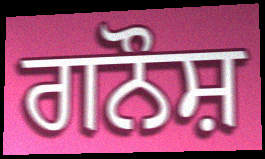
ਗਨੌਸ਼